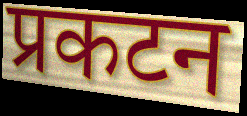
प्रकटन